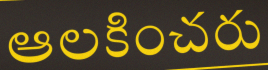
ఆలకించరు